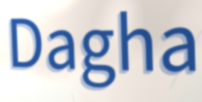
Dagha